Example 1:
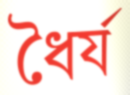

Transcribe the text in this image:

ধৈৰ্য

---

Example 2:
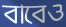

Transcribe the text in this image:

বাবেও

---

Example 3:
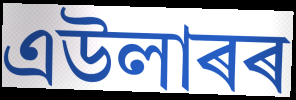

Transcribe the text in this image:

এউলাৰৰ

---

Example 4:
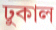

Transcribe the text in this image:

ঢুকাল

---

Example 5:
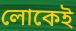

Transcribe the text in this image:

লোকেই